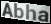
Abha